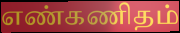
எண்கணிதம்